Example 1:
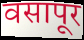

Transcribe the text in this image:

वसापूर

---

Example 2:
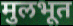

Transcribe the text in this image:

मुलभूत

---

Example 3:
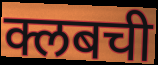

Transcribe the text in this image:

क्लबची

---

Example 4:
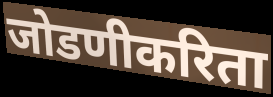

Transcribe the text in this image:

जोडणीकरिता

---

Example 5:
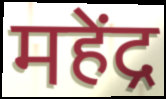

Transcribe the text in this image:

महेंद्र